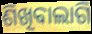
ଶିଖିବାଲାଗି